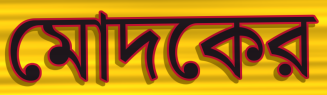
মোদকের